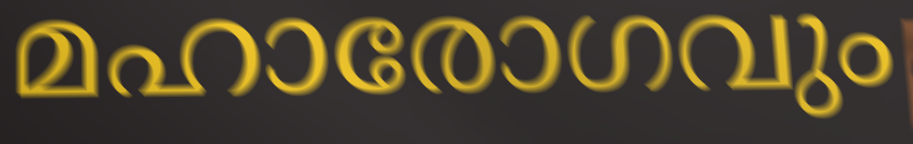
മഹാരോഗവും